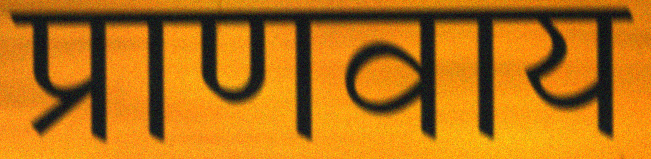
प्राणवाय